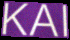
KAI